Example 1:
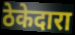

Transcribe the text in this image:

ठेकेदारा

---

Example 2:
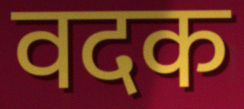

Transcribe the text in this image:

वदक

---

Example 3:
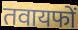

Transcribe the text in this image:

तवायफों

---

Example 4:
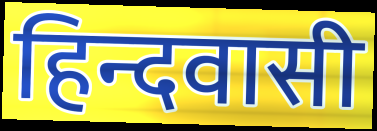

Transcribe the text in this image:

हिन्दवासी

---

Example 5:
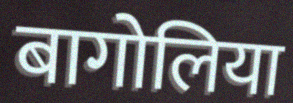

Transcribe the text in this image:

बागोलिया